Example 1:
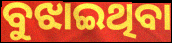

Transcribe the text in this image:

ବୁଝାଇଥିବା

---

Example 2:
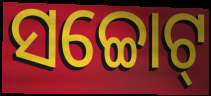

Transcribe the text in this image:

ସଚ୍ଚୋଟ୍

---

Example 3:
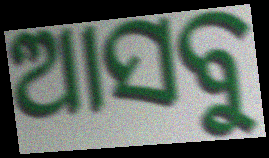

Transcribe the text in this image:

ଆସବୁ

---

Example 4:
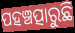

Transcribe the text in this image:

ପହଞ୍ଚତ୍ପାରୁଛି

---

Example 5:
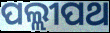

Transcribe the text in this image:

ପଲ୍ଲୀପଥ